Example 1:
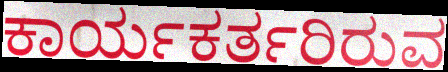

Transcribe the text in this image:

ಕಾರ್ಯಕರ್ತರಿರುವ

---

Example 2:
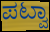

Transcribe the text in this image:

ಪಟ್ವಾ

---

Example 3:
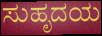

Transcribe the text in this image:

ಸುಹೃದಯ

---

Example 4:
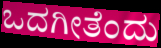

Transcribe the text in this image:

ಒದಗೀತೆಂದು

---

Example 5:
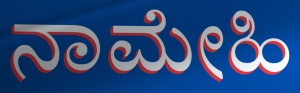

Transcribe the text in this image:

ನಾಮೇಹಿ